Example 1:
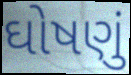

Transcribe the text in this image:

ઘોષણું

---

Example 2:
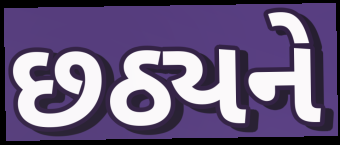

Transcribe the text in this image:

છઠ્યને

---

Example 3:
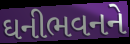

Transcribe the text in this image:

ઘનીભવનને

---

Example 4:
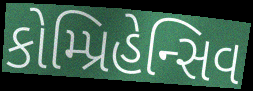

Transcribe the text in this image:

કોમ્પ્રિહેન્સિવ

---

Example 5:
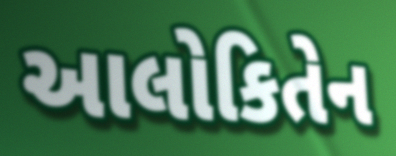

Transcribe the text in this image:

આલોકિતેન